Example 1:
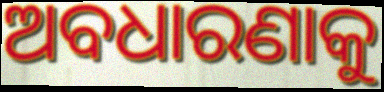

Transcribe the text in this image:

ଅବଧାରଣାକୁ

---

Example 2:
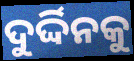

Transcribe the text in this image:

ଦୁର୍ଦ୍ଦିନକୁ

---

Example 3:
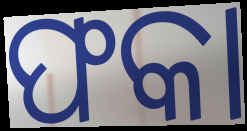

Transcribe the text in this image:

ଫକା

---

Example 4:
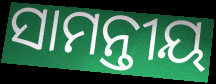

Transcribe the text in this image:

ସାମନ୍ତୀୟ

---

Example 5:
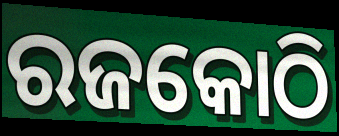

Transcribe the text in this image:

ରଜକୋଠି